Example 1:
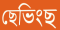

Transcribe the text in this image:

ছেভিংছ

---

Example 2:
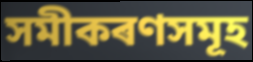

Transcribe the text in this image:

সমীকৰণসমূহ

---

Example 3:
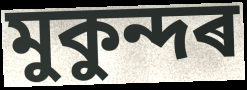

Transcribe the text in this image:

মুকুন্দৰ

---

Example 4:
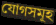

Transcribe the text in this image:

যোগসমূহ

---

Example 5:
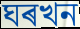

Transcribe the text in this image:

ঘৰখন